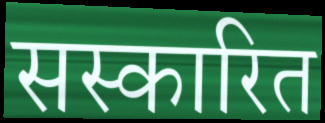
सस्कारित